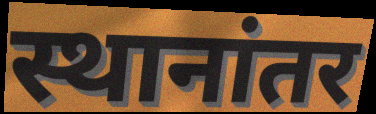
स्थानांतर